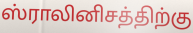
ஸ்ராலினிசத்திற்கு